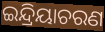
ଇନ୍ଦ୍ରିୟାଚରଣ